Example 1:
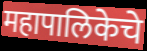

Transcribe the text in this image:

महापालिकेचे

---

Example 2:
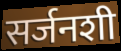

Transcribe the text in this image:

सर्जनशी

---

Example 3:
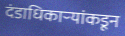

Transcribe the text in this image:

दंडाधिकाऱ्यांकडून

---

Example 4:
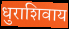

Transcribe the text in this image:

धुराशिवाय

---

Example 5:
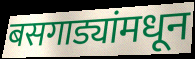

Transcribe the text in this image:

बसगाड्यांमधून